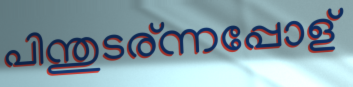
പിന്തുടര്ന്നപ്പോള്